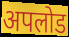
अपलोड